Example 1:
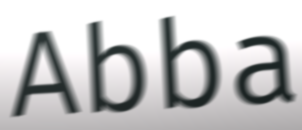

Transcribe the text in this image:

Abba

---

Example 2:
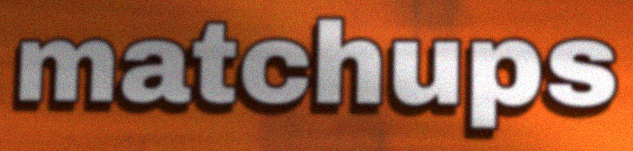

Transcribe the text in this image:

matchups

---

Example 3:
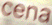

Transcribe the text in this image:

cena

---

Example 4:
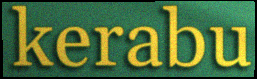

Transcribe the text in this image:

kerabu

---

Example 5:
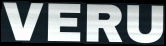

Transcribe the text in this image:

VERU